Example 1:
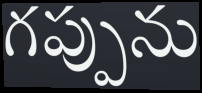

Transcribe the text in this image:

గప్పును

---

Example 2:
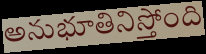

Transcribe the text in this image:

అనుభూతినిస్తోంది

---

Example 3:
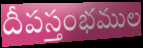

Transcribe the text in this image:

దీపస్తంభముల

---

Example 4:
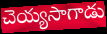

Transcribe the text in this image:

చెయ్యసాగాడు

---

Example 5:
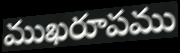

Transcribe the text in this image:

ముఖరూపము